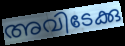
അവിടേക്കു